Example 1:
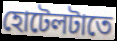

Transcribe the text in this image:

হোটেলটাতে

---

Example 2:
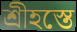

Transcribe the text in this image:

শ্রীহস্তে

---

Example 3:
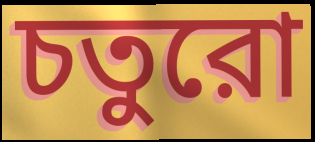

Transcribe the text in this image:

চতুরো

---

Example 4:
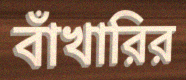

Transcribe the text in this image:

বাঁখারির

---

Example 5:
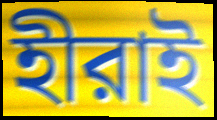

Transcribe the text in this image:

হীরাই